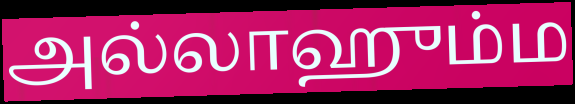
அல்லாஹும்ம